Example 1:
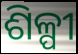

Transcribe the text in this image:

ଶିଳ୍ପୀ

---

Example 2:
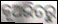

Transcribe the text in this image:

କୂଅଭିତରୁ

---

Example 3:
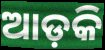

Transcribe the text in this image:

ଆଡ଼କି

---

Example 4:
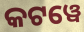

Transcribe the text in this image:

କଟୱେ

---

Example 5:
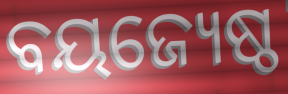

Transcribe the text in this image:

ବୟଜ୍ୟେଷ୍ଠ